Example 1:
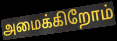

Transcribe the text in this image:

அமைக்கிறோம்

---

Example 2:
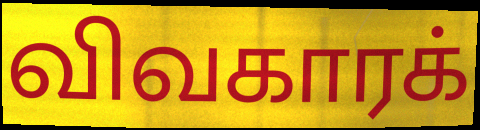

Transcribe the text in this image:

விவகாரக்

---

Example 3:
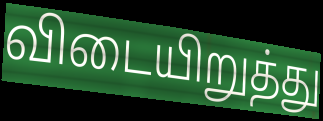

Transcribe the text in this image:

விடையிறுத்து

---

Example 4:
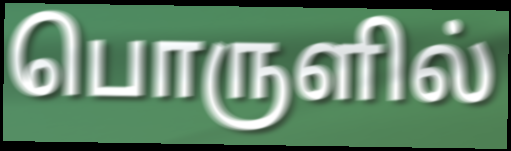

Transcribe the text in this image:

பொருளில்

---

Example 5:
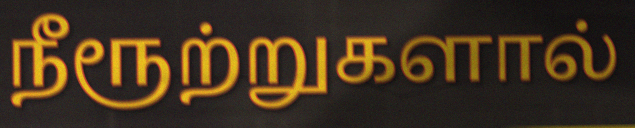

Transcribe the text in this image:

நீரூற்றுகளால்